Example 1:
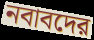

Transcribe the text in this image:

নবাবদের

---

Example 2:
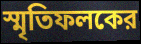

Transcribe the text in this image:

স্মৃতিফলকের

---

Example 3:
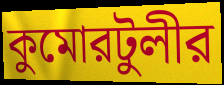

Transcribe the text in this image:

কুমোরটুলীর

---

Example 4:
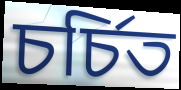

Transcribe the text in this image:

চর্চিত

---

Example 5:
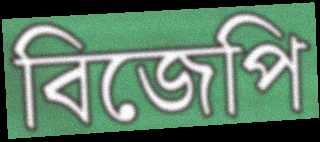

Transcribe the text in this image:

বিজেপি